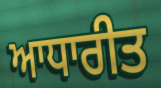
ਆਧਾਰੀਤ